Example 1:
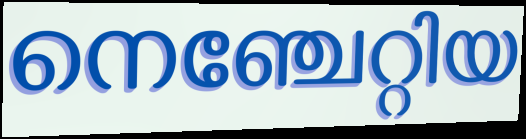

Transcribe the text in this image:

നെഞ്ചേറ്റിയ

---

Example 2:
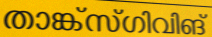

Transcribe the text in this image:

താങ്ക്സ്ഗിവിങ്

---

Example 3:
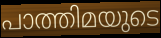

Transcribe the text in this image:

പാത്തിമയുടെ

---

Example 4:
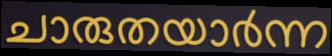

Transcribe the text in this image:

ചാരുതയാർന്ന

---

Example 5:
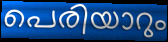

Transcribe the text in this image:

പെരിയാറും